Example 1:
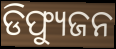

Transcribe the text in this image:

ଡିଫ୍ୟୁଜନ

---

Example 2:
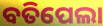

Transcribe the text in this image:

ବତିପେଲା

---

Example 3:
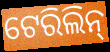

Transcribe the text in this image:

ଟେରିଲିନ୍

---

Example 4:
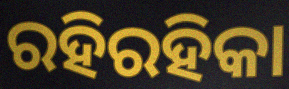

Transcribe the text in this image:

ରହିରହିକା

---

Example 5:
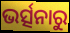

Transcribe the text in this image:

ଭର୍ତ୍ସନାରୁ